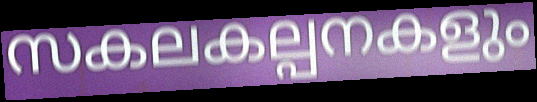
സകലകല്പനകളും